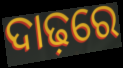
ଦାଢ଼ରେ